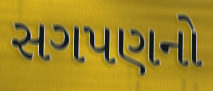
સગપણનો